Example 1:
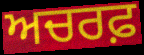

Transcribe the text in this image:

ਅਚਰਫ਼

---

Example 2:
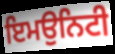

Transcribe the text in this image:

ਇਮਉਨਿਟੀ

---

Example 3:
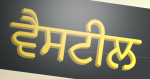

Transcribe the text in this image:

ਵੈਸਟੀਲ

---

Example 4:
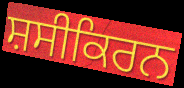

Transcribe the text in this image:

ਸ਼ਸੀਕਿਰਨ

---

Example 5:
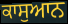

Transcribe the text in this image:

ਕਾਸੁਆਨ